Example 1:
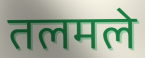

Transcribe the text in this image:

तलमले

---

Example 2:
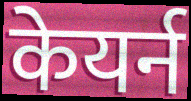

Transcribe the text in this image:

केयर्न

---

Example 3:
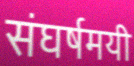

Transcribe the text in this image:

संघर्षमयी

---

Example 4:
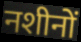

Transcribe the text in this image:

नशीनों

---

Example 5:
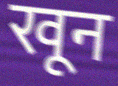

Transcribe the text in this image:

खून